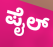
ಪೈಲ್